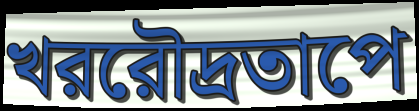
খররৌদ্রতাপে